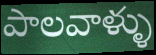
పాలవాళ్ళు